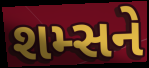
શમ્સને